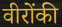
वीरोंकी